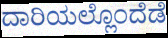
ದಾರಿಯಲ್ಲೊಂದೆಡೆ